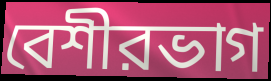
বেশীরভাগ